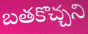
బతకొచ్చని